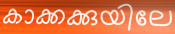
കാക്കക്കുയിലേ